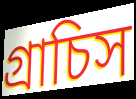
গ্রাচিস